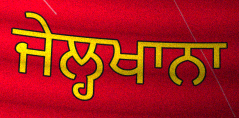
ਜੇਲ੍ਹਖਾਨਾ